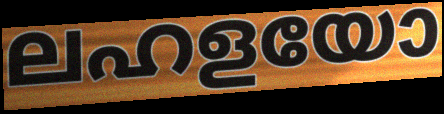
ലഹളയോ